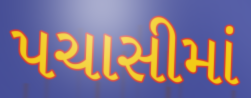
પચાસીમાં